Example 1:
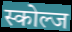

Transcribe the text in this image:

स्कोल्ज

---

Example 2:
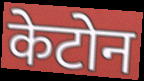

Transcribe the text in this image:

केटोन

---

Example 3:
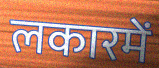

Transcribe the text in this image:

लकारमें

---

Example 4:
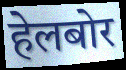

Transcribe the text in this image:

हेलबोर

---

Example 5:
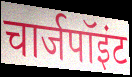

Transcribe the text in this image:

चार्जपॉइंट